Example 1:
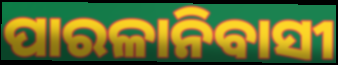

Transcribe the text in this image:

ପାରଳାନିବାସୀ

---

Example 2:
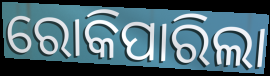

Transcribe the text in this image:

ରୋକିପାରିଲା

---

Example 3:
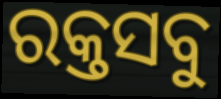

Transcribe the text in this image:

ରକ୍ତସବୁ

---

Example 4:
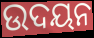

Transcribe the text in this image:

ଉଦୟନ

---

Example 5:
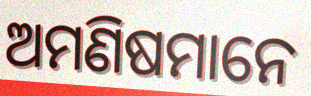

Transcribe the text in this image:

ଅମଣିଷମାନେ